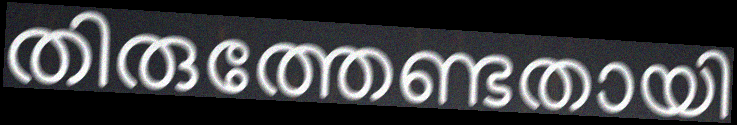
തിരുത്തേണ്ടതായി